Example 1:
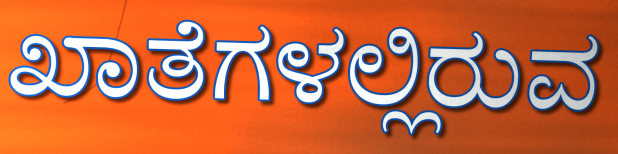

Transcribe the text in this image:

ಖಾತೆಗಳಲ್ಲಿರುವ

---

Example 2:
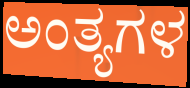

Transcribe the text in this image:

ಅಂತ್ಯಗಳ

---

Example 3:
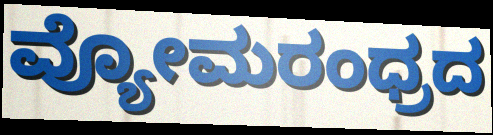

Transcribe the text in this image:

ವ್ಯೋಮರಂಧ್ರದ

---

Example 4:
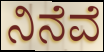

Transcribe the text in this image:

ನಿನೆವೆ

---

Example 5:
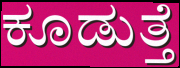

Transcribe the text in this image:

ಕೂಡುತ್ತೆ